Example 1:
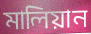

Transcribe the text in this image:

মালিয়ান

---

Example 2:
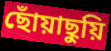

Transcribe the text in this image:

ছোঁয়াছুয়ি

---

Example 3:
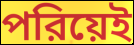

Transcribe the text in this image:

পরিয়েই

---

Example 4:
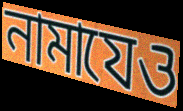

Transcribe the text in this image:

নামাযেও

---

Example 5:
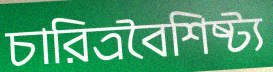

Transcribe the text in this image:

চারিত্রবৈশিষ্ট্য